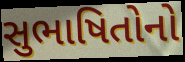
સુભાષિતોનો